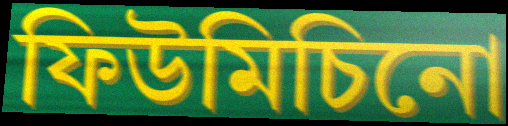
ফিউমিচিনো